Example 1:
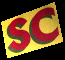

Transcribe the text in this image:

SC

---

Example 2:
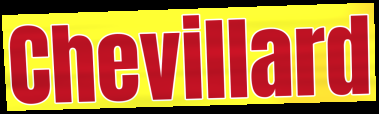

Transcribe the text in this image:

Chevillard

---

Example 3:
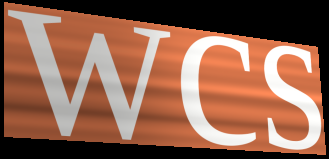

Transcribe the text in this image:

wcs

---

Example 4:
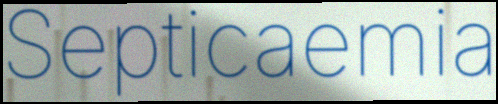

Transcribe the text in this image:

Septicaemia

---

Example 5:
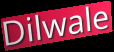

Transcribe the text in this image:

Dilwale